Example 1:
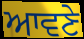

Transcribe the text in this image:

ਆਵਣੇ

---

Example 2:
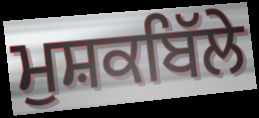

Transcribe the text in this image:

ਮੁਸ਼ਕਬਿੱਲੇ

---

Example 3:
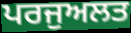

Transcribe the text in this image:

ਪਰਜੁਅਲਤ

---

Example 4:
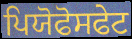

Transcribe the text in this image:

ਪਿਯੋਫੋਸਫੇਟ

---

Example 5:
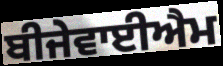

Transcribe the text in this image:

ਬੀਜੇਵਾਈਐਮ